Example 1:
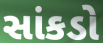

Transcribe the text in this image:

સાંકડો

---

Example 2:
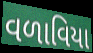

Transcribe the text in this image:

વળાવિયા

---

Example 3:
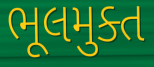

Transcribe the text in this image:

ભૂલમુક્ત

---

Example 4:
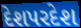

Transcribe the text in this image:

દેશપરદેશ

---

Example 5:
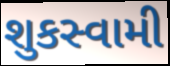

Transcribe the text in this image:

શુકસ્વામી